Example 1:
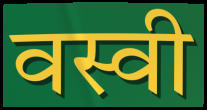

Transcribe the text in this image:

वस्वी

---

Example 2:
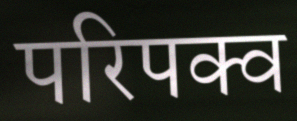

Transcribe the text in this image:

परिपक्व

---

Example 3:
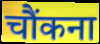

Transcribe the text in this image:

चौंकना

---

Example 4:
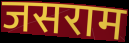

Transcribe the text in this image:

जसराम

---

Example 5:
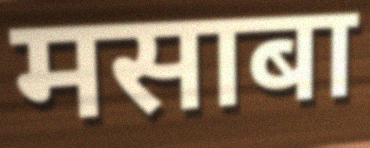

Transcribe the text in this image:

मसाबा